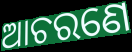
ଆଚରଣେ